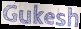
Gukesh